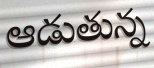
ఆడుతున్న